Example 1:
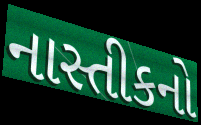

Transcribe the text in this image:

નાસ્તીકનો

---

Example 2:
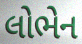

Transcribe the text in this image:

લોભેન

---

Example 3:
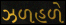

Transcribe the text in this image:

ઝળહળે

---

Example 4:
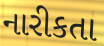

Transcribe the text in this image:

નારીકતા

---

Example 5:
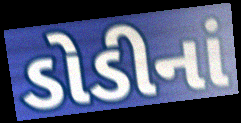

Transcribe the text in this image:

ડોડીનાં